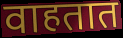
वाहतात